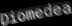
Diomedea